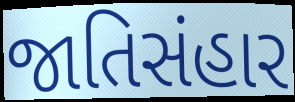
જાતિસંહાર